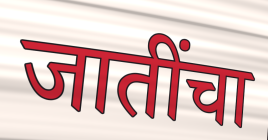
जातींचा